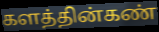
களத்தின்கண்